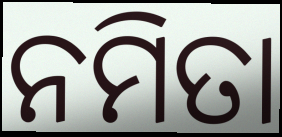
ନମିତା